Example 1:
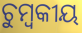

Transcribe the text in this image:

ଚୁମ୍ବକୀୟ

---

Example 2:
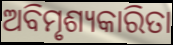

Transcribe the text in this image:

ଅବିମୃଶ୍ୟକାରିତା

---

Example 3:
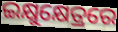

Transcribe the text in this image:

ଇକ୍ଷୁକ୍ଷେତ୍ରରେ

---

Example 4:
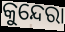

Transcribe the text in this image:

କୁନ୍ଦେରା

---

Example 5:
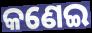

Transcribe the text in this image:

କଣେଇ